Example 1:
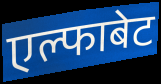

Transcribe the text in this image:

एल्फाबेट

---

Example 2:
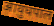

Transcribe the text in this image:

आयुधपाल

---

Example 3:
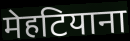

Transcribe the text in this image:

मेहटियाना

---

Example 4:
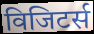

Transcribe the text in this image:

विजिटर्स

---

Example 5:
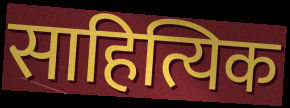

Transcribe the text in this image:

साहित्यिक